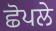
ਛੋਪਲੇ